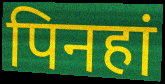
पिनहां